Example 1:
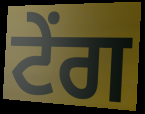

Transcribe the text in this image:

ਟੇਂਗ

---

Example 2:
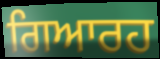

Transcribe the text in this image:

ਗਿਆਰਹ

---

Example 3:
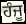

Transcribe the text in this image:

ਹੰਜੂ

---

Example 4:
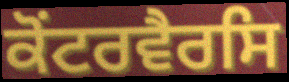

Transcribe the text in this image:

ਕੋਂਟਰਵੈਰਸਿ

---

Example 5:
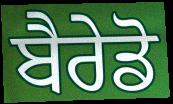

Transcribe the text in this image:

ਬੈਰੇਡੋ